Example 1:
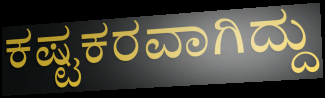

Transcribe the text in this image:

ಕಷ್ಟಕರವಾಗಿದ್ದು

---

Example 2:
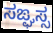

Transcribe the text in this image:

ಸಙ್ಘಸ್ಸ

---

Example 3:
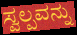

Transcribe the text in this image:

ಸ್ವಲ್ಪವನ್ನು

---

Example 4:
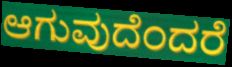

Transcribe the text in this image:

ಆಗುವುದೆಂದರೆ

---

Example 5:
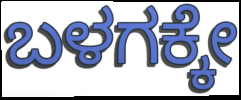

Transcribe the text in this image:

ಬಳಗಕ್ಕೇ